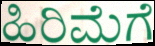
ಹಿರಿಮೆಗೆ